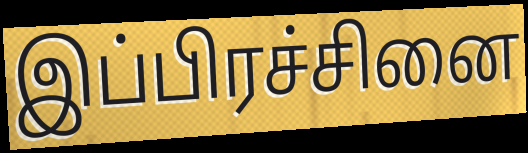
இப்பிரச்சினை